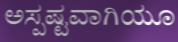
ಅಸ್ಪಷ್ಟವಾಗಿಯೂ